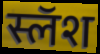
स्लॅश